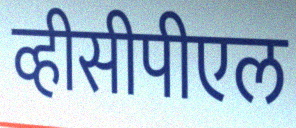
व्हीसीपीएल